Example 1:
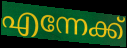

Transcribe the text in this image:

എന്നേക്ക്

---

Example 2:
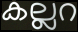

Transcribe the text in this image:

കല്ലറ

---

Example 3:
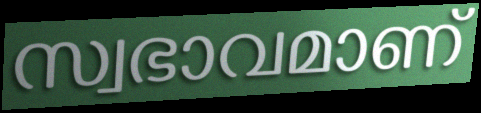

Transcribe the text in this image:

സ്വഭാവമാണ്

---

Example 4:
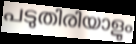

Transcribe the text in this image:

പടുതിരിയാളും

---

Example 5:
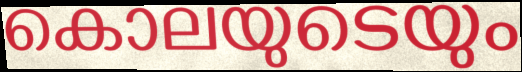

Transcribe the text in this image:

കൊലയുടെയും